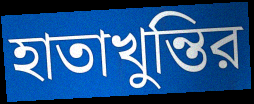
হাতাখুন্তির